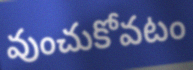
వుంచుకోవటం